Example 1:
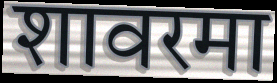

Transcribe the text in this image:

शावरमा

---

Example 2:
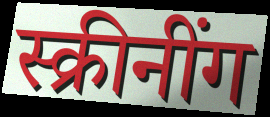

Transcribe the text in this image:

स्क्रीनींग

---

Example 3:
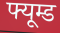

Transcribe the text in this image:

फ्यूम्ड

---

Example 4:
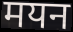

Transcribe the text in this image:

मयन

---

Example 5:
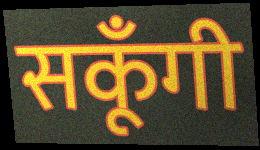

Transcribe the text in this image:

सकूँगी